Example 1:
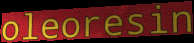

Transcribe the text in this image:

oleoresin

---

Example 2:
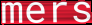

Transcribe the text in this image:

mers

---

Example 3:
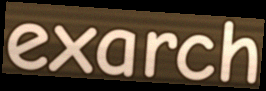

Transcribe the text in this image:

exarch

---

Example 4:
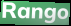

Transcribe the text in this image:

Rango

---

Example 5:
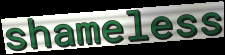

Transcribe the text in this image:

shameless